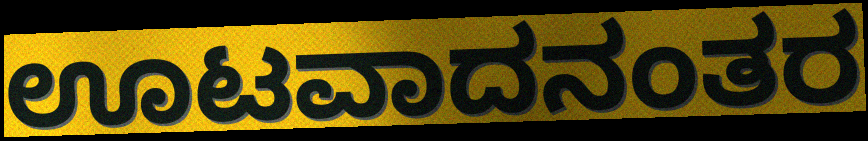
ಊಟವಾದನಂತರ